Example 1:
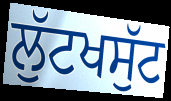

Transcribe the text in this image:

ਲੁੱਟਖਸੁੱਟ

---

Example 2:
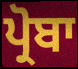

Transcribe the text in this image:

ਪ੍ਰੋਬਾ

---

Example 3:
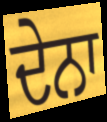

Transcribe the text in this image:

ਦੇਨਾ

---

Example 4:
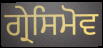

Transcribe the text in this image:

ਗ੍ਰੇਸਿਮੋਵ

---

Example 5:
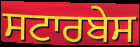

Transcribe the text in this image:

ਸਟਾਰਬੇਸ